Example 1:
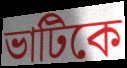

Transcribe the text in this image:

ভাটিকে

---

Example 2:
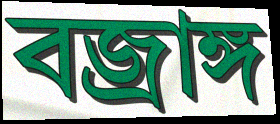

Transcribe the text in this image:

বজ্রাঙ্গ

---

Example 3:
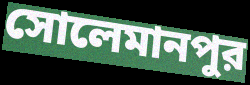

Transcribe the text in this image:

সোলেমানপুর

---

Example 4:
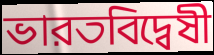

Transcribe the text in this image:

ভারতবিদ্বেষী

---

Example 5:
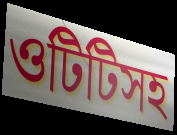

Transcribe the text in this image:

ওটিটিসহ